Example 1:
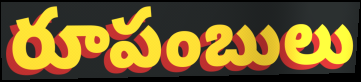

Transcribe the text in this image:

రూపంబులు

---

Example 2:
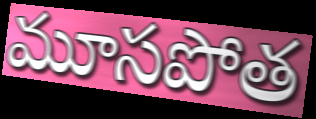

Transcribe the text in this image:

మూసపోత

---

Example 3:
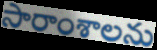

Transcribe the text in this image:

సారాంశాలను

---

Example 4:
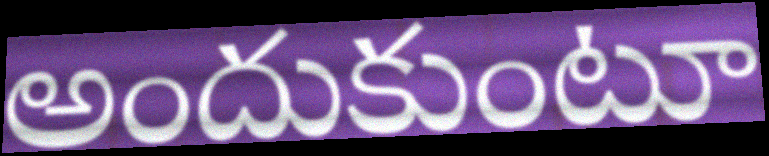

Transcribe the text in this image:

అందుకుంటూ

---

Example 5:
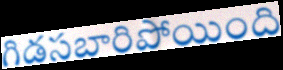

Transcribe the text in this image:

గిడసబారిపోయింది